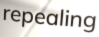
repealing